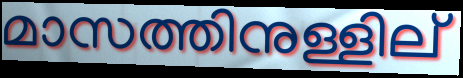
മാസത്തിനുള്ളില്